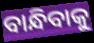
ବାନ୍ଧିବାକୁ